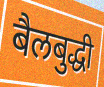
बैलबुद्धी